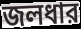
জলধার